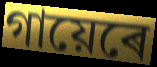
গায়েৰে